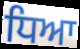
ਧਿਆ